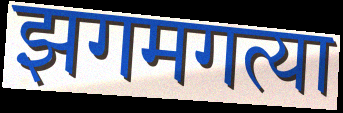
झगमगत्या